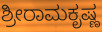
ಶ್ರೀರಾಮಕೃಷ್ಣ